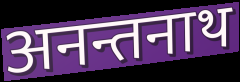
अनन्तनाथ